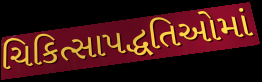
ચિકિત્સાપદ્ધતિઓમાં